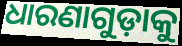
ଧାରଣାଗୁଡ଼ାକୁ